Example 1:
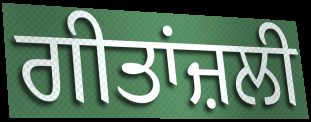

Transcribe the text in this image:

ਗੀਤਾਂਜ਼ਲੀ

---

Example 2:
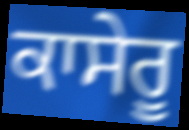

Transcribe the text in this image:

ਕਾਸੇਰੂ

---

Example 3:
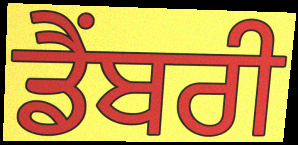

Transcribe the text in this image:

ਡੈਂਬਰੀ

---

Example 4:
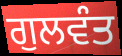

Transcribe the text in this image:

ਗੁਲਵੰਤ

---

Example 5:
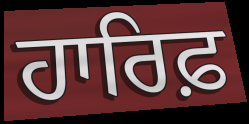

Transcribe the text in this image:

ਹਾਰਿਫ਼